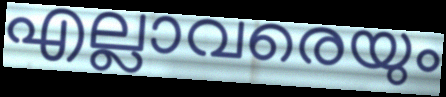
എല്ലാവരെയും